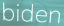
biden